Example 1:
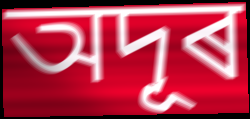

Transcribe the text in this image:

অদূৰ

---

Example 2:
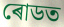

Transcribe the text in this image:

ৰোডত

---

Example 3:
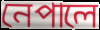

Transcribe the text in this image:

নেপালে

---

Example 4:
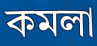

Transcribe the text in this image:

কমলা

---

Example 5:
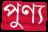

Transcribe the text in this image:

পুণ্য